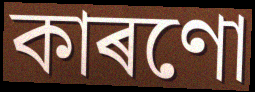
কাৰণো